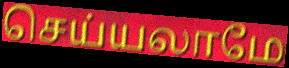
செய்யலாமே